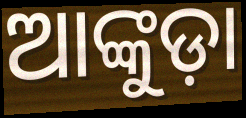
ଆଙ୍କୁଡ଼ା